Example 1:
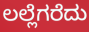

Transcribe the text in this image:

ಲಲ್ಲೆಗರೆದು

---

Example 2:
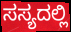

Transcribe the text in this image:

ಸಸ್ಯದಲ್ಲಿ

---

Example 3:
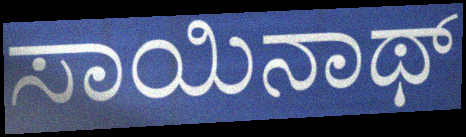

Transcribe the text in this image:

ಸಾಯಿನಾಥ್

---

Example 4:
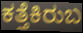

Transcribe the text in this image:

ಕತ್ತೆಕಿರುಬ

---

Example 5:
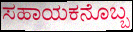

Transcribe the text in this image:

ಸಹಾಯಕನೊಬ್ಬ